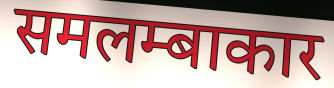
समलम्बाकार